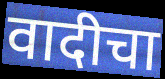
वादीचा